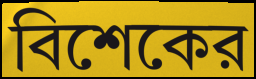
বিশেকের